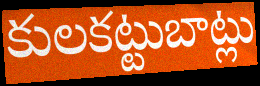
కులకట్టుబాట్లు